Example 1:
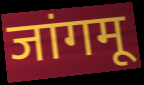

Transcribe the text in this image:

जांगमू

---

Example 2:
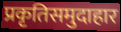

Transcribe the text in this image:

प्रकृतिसमुदाहार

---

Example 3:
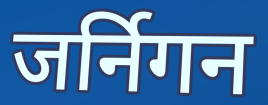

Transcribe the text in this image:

जर्निगन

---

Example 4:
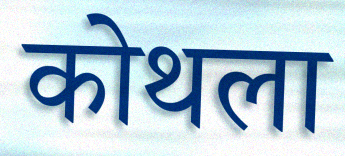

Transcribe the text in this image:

कोथला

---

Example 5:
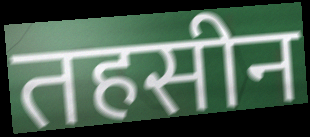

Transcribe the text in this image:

तहसीन